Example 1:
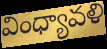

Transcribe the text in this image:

వింధ్యావళి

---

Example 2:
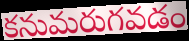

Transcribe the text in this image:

కనుమరుగవడం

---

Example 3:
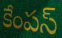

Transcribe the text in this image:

కేంపస్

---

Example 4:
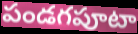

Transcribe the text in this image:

పండగపూటా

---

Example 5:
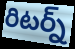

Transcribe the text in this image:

రిటర్న్